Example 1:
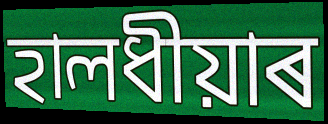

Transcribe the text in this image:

হালধীয়াৰ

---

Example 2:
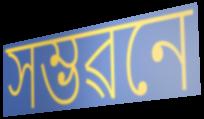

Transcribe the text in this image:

সম্ভৱনে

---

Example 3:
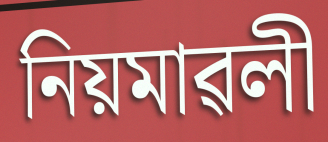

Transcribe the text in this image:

নিয়মাৱলী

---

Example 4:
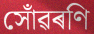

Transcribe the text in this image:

সোঁৱৰণি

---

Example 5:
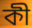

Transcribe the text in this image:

কী